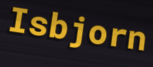
Isbjorn